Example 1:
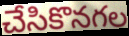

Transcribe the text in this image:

చేసికొనగల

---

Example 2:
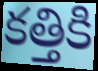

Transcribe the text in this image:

కత్తికి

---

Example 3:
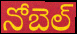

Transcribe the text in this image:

నోబెల్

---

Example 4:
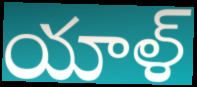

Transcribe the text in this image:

యాళ్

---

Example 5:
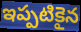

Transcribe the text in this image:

ఇప్పటికైన